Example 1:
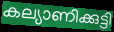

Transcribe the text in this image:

കല്യാണിക്കുട്ടി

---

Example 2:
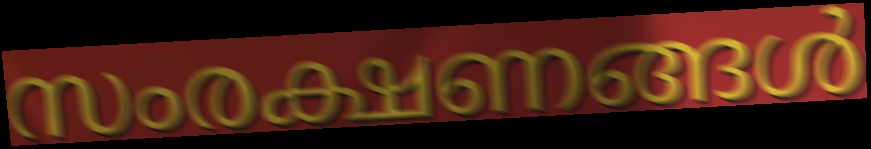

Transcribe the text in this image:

സംരക്ഷണങ്ങൾ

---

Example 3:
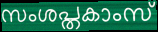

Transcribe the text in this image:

സംശപ്തകാംസ്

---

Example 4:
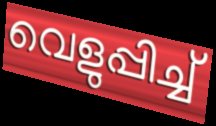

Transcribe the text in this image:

വെളുപ്പിച്ച്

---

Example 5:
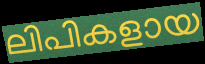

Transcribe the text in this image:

ലിപികളായ